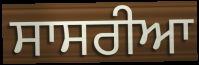
ਸਾਸਰੀਆ